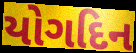
યોગદિન